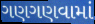
ગણગણવામાં